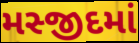
મસ્જીદમાં